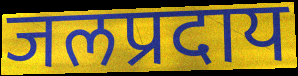
जलप्रदाय